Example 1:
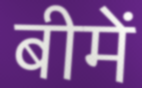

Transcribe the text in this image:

बीमें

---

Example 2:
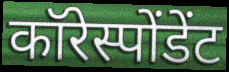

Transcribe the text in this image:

कॉरेस्पोंडेंट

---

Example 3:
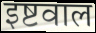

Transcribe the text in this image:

इष्टवाल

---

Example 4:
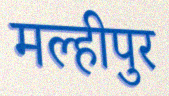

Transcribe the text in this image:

मल्हीपुर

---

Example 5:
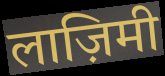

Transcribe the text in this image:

लाज़िमी